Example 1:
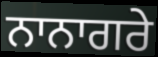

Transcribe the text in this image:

ਨਾਨਾਗਰੇ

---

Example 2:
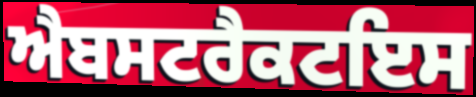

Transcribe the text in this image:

ਐਬਸਟਰੈਕਟਇਸ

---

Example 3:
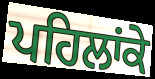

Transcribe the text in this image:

ਪਹਿਲਾਂਕੇ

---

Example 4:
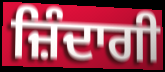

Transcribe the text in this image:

ਜ਼ਿੰਦਾਗੀ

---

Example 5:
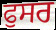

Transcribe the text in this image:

ਫੁਸਰ